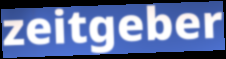
zeitgeber